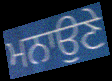
ਮਨਾਉਣੇ